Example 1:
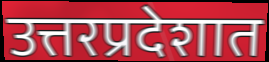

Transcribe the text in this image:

उत्तरप्रदेशात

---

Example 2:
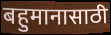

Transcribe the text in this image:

बहुमानासाठी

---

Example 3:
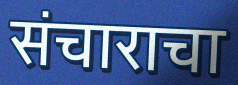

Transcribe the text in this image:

संचाराचा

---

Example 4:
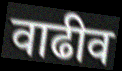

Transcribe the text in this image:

वाढीव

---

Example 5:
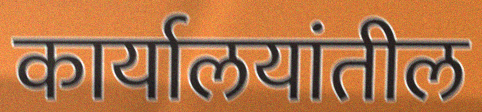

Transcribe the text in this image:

कार्यालयांतील